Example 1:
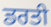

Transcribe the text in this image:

ਡਰਤੀ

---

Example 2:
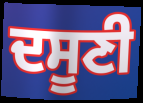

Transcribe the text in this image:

ਦਸੂਣੀ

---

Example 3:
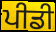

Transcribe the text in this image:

ਪੀਡੀ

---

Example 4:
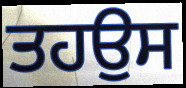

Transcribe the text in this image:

ਤਹਉਸ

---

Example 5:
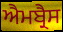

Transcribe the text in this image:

ਐਮਬ੍ਰੈਸ